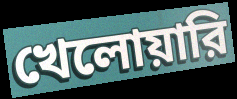
খেলোয়ারি